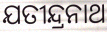
ଯତୀନ୍ଦ୍ରନାଥ